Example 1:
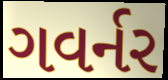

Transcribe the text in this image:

ગવર્નર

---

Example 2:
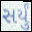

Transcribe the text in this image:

સર્યું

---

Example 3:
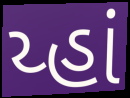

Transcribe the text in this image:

ય્હાં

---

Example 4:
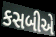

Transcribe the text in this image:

કસબીએ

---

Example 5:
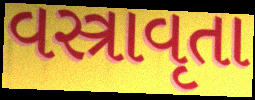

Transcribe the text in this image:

વસ્ત્રાવૃતા